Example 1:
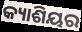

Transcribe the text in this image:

କ୍ୟାଶିୟର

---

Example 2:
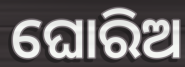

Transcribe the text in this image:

ଘୋରିଅ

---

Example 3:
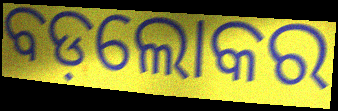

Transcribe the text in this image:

ବଡ଼ଲୋକର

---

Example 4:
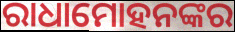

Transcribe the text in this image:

ରାଧାମୋହନଙ୍କର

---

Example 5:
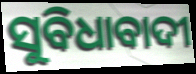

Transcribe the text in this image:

ସୁବିଧାବାଦୀ